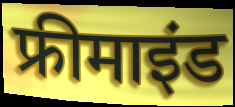
फ्रीमाइंड